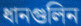
ধানগুলিন